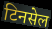
टिनसेल